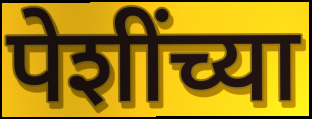
पेशींच्या